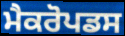
ਮੈਕਰੋਪਡਸ